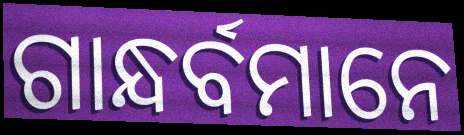
ଗାନ୍ଧର୍ବମାନେ